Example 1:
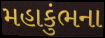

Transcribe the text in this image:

મહાકુંભના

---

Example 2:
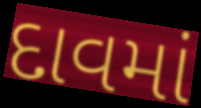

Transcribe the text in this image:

દાવમાં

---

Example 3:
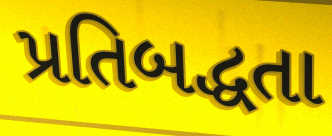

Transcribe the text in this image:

પ્રતિબદ્ધતા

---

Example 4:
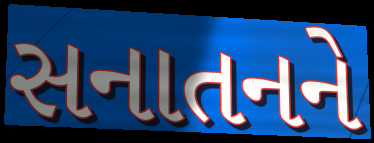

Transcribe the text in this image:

સનાતનને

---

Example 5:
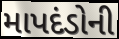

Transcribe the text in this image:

માપદંડોની